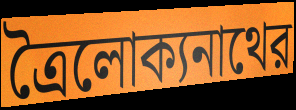
ত্রৈলোক্যনাথের